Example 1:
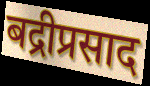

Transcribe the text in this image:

बद्रीप्रसाद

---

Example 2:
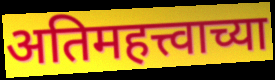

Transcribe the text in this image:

अतिमहत्त्वाच्या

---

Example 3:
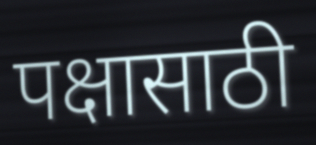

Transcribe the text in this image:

पक्षासाठी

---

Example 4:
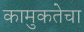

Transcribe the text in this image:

कामुकतेचा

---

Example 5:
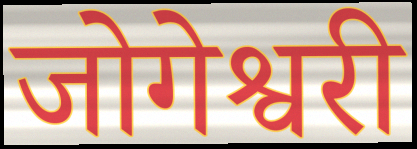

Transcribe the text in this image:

जोगेश्वरी